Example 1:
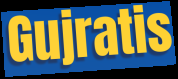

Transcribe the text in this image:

Gujratis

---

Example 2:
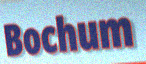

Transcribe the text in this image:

Bochum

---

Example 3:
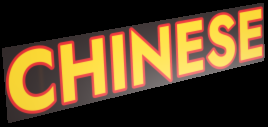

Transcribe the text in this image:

CHINESE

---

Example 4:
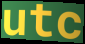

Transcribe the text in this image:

utc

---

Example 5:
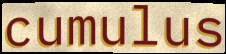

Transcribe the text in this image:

cumulus